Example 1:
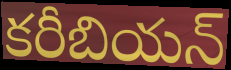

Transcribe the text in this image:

కరీబియన్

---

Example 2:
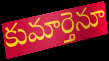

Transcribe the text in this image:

కుమార్తెనూ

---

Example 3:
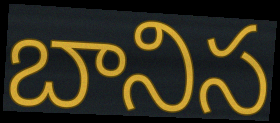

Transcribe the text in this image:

బానిస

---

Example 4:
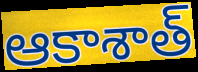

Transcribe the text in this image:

ఆకాశాత్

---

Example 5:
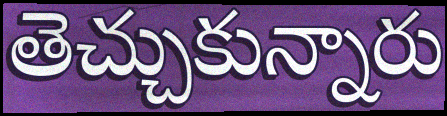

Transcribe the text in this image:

తెచ్చుకున్నారు